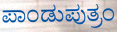
ಪಾಂಡುಪುತ್ರಂ